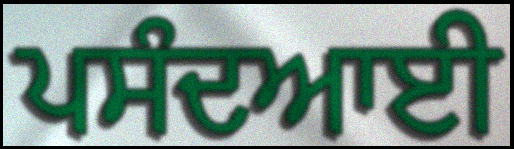
ਪਸੰਦਆਈ